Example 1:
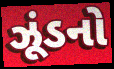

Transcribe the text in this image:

ઝૂંડનો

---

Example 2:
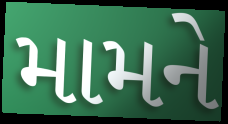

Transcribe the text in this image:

મામને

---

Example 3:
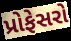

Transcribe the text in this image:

પ્રોફેસરો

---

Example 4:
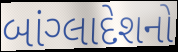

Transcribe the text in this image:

બાંગ્લાદેશનો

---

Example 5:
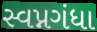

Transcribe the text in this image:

સ્વપ્નગંધા